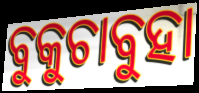
ବୁକୁଚାବୁହା